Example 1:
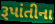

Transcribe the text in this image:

રૂપાંતીના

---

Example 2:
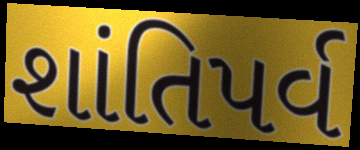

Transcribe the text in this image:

શાંતિપર્વ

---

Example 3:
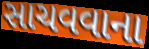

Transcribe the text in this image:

સાચવવાના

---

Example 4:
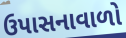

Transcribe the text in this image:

ઉપાસનાવાળો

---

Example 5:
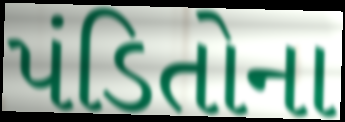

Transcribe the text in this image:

પંડિતોના